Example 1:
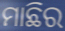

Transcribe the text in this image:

ମାଛିର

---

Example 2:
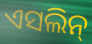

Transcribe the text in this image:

ଏସଲିନ୍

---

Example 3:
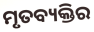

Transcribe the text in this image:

ମୃତବ୍ୟକ୍ତିର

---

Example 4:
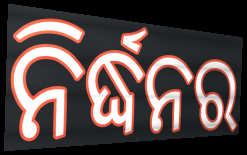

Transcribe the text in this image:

ନିର୍ଦ୍ଧନର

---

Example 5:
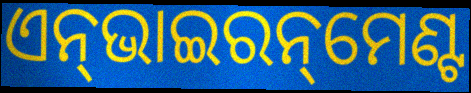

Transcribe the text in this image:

ଏନ୍‌ଭାଇରନ୍‌ମେଣ୍ଟ